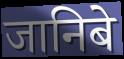
जानिबे